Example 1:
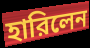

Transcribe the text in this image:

হারিলেন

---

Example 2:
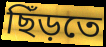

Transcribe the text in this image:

ছিঁড়তে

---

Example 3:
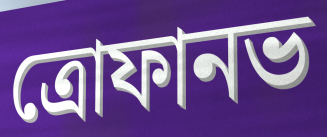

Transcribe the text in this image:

ত্রোফানভ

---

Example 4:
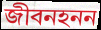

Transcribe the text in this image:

জীবনহনন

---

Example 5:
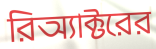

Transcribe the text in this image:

রিঅ্যাক্টরের